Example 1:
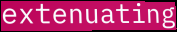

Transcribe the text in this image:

extenuating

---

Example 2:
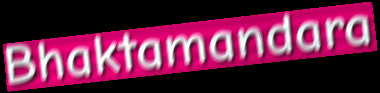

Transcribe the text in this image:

Bhaktamandara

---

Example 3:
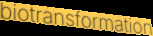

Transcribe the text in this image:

biotransformation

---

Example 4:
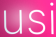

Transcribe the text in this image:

usi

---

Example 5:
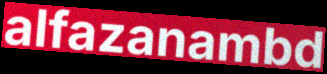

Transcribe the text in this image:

alfazanambd